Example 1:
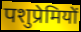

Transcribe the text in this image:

पशुप्रेमियों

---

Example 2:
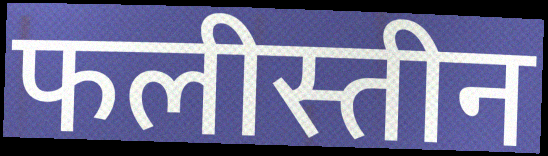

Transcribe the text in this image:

फलीस्तीन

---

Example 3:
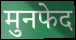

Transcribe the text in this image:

मुनफेद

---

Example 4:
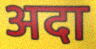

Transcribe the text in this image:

अदा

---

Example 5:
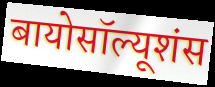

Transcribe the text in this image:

बायोसॉल्यूशंस